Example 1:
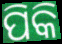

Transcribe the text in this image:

ପିକି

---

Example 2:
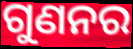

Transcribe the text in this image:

ଗୁଣନର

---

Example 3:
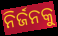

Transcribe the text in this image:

ନିର୍ଜନକୁ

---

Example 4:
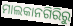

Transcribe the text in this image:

ମାଲକାନଗିରିରୁ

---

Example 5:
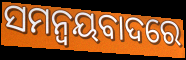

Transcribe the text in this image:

ସମନ୍ୱୟବାଦରେ